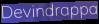
Devindrappa